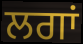
ਲਗਾਂ